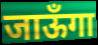
जाऊँगा